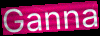
Ganna